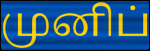
முனிப்